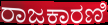
ರಾಜಕಾರಣಿ